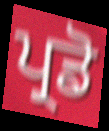
ਪ੍ਰਡੋ